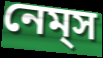
নেম্‌স